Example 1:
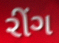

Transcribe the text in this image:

રીંગ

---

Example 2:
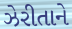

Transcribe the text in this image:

ઝેરીતાને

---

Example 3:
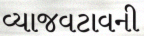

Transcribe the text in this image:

વ્યાજવટાવની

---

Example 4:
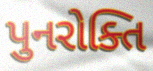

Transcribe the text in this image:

પુનરોક્તિ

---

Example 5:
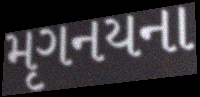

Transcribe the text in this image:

મૃગનયના